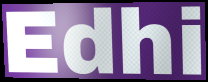
Edhi